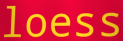
loess